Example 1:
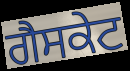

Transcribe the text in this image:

ਗੈਸਕੇਟ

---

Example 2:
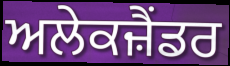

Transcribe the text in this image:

ਅਲੇਕਜ਼ੈਂਡਰ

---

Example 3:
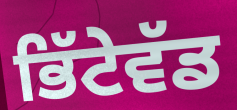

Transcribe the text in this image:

ਭਿੱਟੇਵੱਡ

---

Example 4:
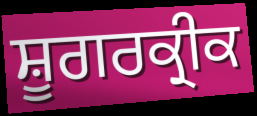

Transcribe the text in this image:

ਸ਼ੂਗਰਕ੍ਰੀਕ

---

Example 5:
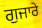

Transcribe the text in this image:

ਗੁਜਾਰੇ